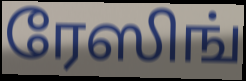
ரேஸிங்